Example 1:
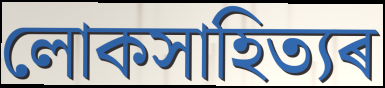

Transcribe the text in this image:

লোকসাহিত্যৰ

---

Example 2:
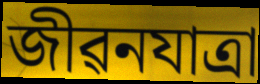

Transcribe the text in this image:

জীৱনযাত্ৰা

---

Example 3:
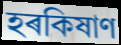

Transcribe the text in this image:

হৰকিষাণ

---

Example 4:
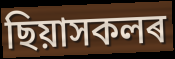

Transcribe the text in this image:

ছিয়াসকলৰ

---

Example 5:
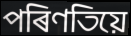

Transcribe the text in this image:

পৰিণতিয়ে